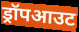
ड्रॉपआउट